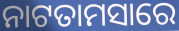
ନାଟତାମସାରେ